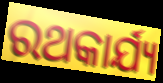
ରଥକାର୍ଯ୍ୟ